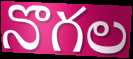
నొగల